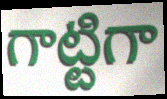
గాట్టిగా